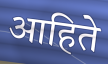
आहिते